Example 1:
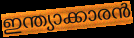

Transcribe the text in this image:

ഇന്ത്യാക്കാരൻ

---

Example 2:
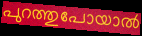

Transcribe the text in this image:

പുറത്തുപോയാൽ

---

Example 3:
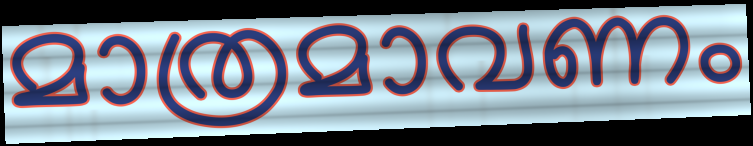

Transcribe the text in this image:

മാത്രമാവണം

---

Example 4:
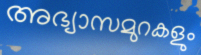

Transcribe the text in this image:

അഭ്യാസമുറകളും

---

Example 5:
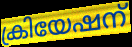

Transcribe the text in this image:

ക്രിയേഷന്